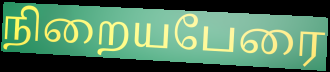
நிறையபேரை